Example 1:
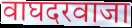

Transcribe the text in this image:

वाघदरवाजा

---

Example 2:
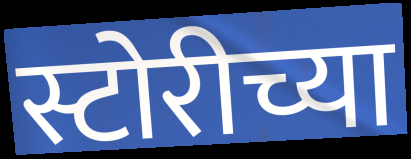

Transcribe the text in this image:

स्टोरीच्या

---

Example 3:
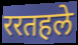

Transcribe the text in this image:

ररतहले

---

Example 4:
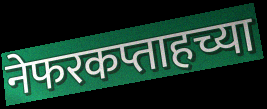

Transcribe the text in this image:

नेफरकप्ताहच्या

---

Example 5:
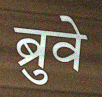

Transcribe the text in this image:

ब्रुवे